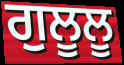
ਗੁਲੂਲੂ